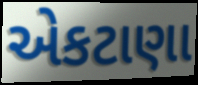
એકટાણા